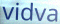
vidva